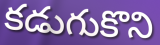
కడుగుకొని